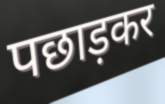
पछाड़कर